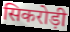
सिकरोड़ी